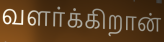
வளர்க்கிறான்